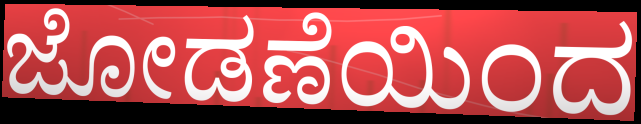
ಜೋಡಣೆಯಿಂದ